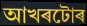
আখৰটোৰ